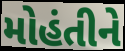
મોહંતીને